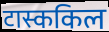
टास्ककिल